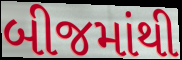
બીજમાંથી